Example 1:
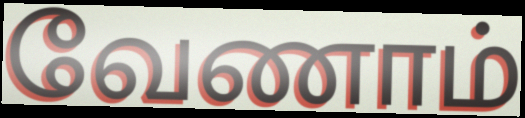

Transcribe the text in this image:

வேணாம்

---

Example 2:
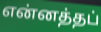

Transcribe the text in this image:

என்னத்தப்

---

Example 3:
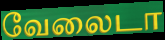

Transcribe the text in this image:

வேலைடா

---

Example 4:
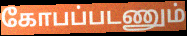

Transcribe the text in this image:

கோபப்படணும்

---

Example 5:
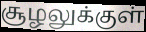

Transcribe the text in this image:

சூழலுக்குள்